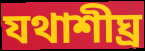
যথাশীঘ্র